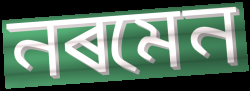
নৰমেন